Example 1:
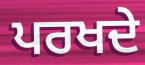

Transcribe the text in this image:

ਪਰਖਦੇ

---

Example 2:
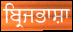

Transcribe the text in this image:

ਬ੍ਰਿਜਭਾਸ਼ਾ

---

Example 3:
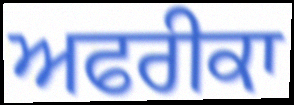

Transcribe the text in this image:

ਅਫਰੀਕਾ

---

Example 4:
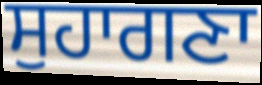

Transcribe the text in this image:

ਸੁਹਾਗਣਾ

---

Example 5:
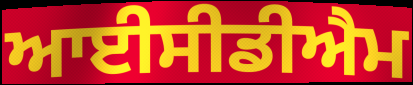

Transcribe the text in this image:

ਆਈਸੀਡੀਐਮ